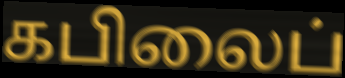
கபிலைப்